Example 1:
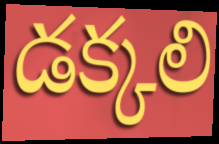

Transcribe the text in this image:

డక్కలి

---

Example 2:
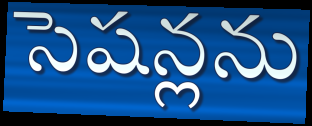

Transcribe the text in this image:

సెషన్లను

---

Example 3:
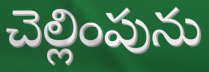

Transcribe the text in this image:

చెల్లింపును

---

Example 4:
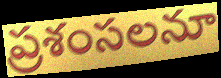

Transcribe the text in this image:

ప్రశంసలనూ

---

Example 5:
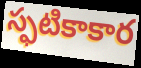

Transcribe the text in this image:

స్ఫటికాకార